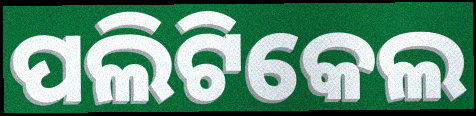
ପଲିଟିକେଲ